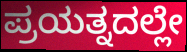
ಪ್ರಯತ್ನದಲ್ಲೇ